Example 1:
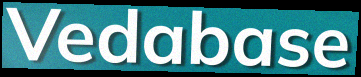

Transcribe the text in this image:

Vedabase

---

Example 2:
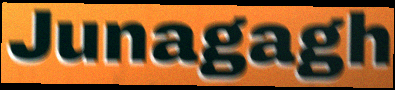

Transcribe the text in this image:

Junagagh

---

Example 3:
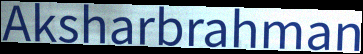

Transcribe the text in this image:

Aksharbrahman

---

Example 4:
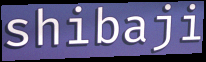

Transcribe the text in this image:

shibaji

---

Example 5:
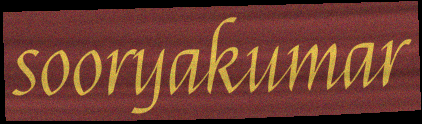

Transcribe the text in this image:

sooryakumar